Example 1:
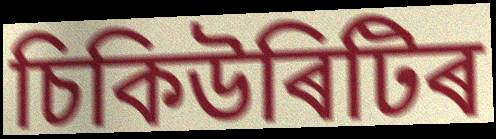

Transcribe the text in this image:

চিকিউৰিটিৰ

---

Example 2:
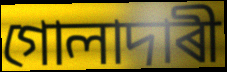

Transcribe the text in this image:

গোলাদাৰী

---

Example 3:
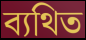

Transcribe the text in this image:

ব্যথিত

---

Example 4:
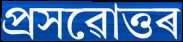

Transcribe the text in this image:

প্ৰসৱোত্তৰ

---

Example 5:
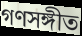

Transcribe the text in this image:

গণসঙ্গীত